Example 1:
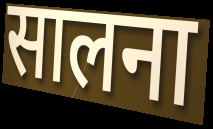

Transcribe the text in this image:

सालना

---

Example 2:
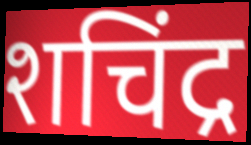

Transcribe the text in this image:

शचिंद्र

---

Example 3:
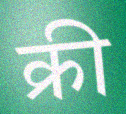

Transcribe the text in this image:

क्री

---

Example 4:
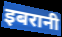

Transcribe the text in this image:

इबरानी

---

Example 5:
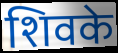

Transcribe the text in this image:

शिवके